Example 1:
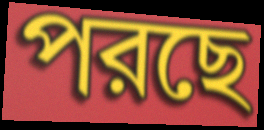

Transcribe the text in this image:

পরছে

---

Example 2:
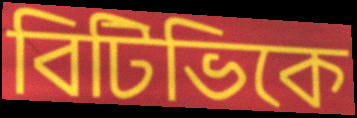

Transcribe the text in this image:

বিটিভিকে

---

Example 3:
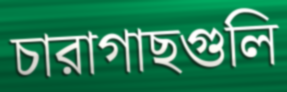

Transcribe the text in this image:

চারাগাছগুলি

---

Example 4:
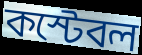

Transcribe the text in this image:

কস্টেবল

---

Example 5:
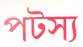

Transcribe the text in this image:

পটস্য